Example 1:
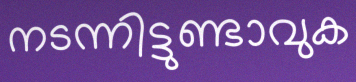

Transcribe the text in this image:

നടന്നിട്ടുണ്ടാവുക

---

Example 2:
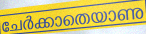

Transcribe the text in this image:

ചേർക്കാതെയാണു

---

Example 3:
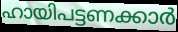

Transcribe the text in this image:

ഹായിപട്ടണക്കാർ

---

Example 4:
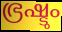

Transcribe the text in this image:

ഭ്രഷ്ടും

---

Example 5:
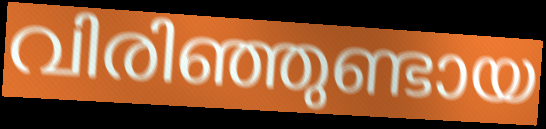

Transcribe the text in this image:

വിരിഞ്ഞുണ്ടായ